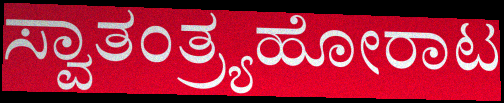
ಸ್ವಾತಂತ್ರ್ಯಹೋರಾಟ